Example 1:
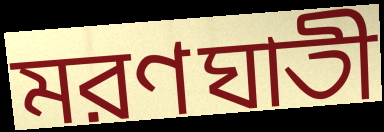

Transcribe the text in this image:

মরণঘাতী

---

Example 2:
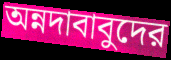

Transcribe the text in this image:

অন্নদাবাবুদের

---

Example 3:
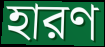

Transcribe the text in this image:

হারণ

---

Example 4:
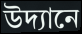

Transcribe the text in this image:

উদ্যানে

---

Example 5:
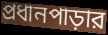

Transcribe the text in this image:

প্রধানপাড়ার